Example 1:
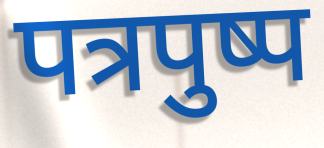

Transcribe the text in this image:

पत्रपुष्प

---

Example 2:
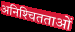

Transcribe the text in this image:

अनिश्‍चितताओं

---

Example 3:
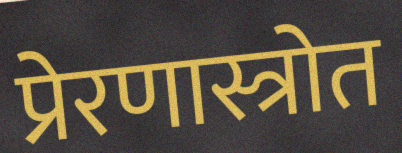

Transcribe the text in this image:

प्रेरणास्त्रोत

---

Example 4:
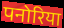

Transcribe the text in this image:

पनोरिया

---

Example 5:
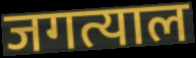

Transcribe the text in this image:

जगत्याल